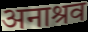
अनाश्रव